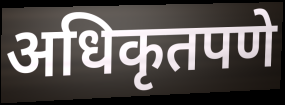
अधिकृतपणे